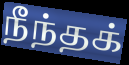
நீந்தக்